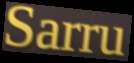
Sarru